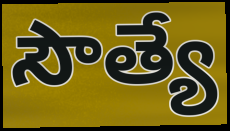
సౌత్యే